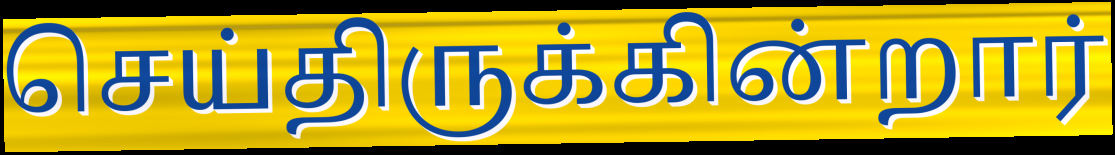
செய்திருக்கின்றார்